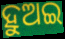
ହୁଅଇ